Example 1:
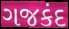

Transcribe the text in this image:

ગજકંદ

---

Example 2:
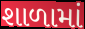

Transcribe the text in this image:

શાળામાં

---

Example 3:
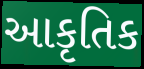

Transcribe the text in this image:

આકૃતિક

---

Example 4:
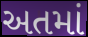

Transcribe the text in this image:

અતમાં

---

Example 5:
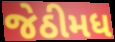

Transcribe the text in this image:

જેઠીમધ